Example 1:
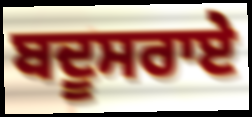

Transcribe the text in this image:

ਬਦੂਸਰਾਏ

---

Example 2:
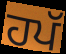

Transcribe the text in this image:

ਹਪੱ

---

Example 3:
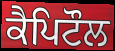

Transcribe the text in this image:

ਕੈਪਿਟੌਲ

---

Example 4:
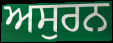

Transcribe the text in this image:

ਅਸੁਰਨ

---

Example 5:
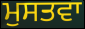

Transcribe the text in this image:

ਮੁਸਤਵਾ